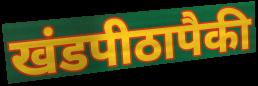
खंडपीठापैकी